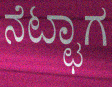
ನೆಟ್ಟಾಗ